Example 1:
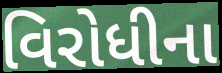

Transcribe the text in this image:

વિરોધીના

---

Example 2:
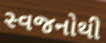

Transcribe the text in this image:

સ્વજનોથી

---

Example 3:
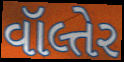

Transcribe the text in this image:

વૉલ્તેર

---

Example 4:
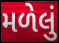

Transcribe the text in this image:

મળેલું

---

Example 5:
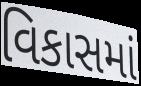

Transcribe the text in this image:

વિકાસમાં